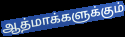
ஆத்மாக்களுக்கும்